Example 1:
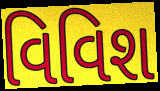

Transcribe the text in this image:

વિવિશ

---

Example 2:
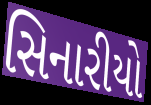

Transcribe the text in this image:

સિનારીયો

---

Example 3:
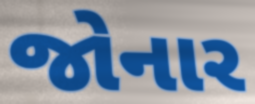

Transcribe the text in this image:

જોનાર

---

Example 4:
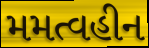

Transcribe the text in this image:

મમત્વહીન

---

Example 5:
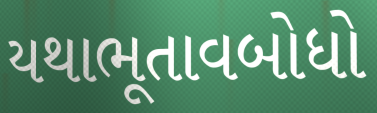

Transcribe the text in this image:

યથાભૂતાવબોધો